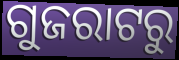
ଗୁଜରାଟରୁ